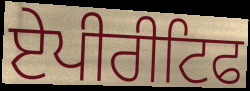
ਏਪੀਰੀਟਿਫ